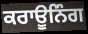
ਕਰਾਊਨਿੰਗ